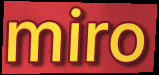
miro